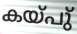
കയ്പു്